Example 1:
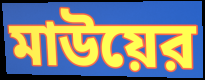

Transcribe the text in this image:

মাউয়ের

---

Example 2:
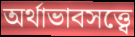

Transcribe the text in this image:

অর্থাভাবসত্ত্বে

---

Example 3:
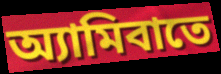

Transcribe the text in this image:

অ্যামিবাতে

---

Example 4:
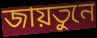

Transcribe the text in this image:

জায়তুনে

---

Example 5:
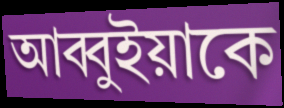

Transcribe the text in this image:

আব্বুইয়াকে